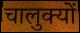
चालुक्यों